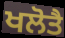
ਖਲੋਤੈ